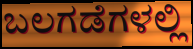
ಬಲಗಡೆಗಳಲ್ಲಿ